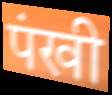
पंखी